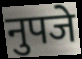
नुपजे